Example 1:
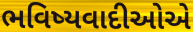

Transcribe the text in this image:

ભવિષ્યવાદીઓએ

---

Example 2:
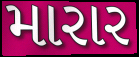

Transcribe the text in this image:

મારાર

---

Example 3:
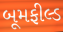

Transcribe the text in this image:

બૂમફીલ્ડ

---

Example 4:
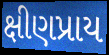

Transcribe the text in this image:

ક્ષીણપ્રાય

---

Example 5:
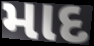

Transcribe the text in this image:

માદ